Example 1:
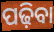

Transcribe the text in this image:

ପଢ଼ିବା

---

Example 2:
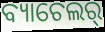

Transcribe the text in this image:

ବ୍ୟାଚେଲର୍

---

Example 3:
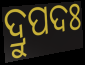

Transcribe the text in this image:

ଦ୍ରୁପଦଃ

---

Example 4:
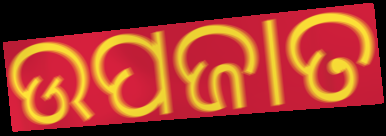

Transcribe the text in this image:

ଉପଜାତ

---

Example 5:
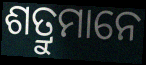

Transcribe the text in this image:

ଶତ୍ରୁମାନେ